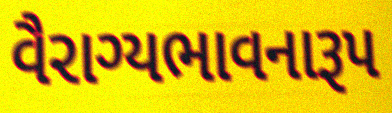
વૈરાગ્યભાવનારૂપ